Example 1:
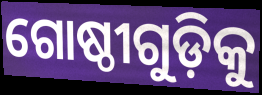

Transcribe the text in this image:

ଗୋଷ୍ଠୀଗୁଡ଼ିକୁ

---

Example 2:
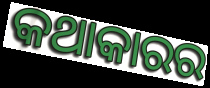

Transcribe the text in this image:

କଥାକାରର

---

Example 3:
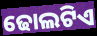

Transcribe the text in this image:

ଢୋଲଟିଏ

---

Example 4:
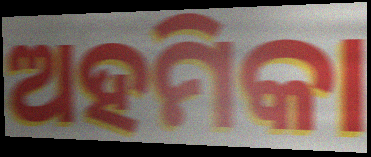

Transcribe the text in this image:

ଅହମିକା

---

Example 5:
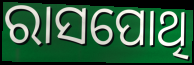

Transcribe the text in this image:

ରାସପୋଥି